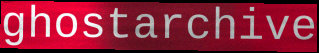
ghostarchive